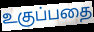
உகுப்பதை